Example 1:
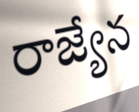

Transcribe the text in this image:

రాజ్యేన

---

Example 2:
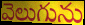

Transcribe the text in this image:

వెలుగును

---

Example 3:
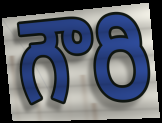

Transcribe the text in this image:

గౌరి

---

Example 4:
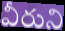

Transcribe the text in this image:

వీరుని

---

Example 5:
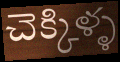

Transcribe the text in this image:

చెక్కిళ్ళ